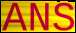
ANS